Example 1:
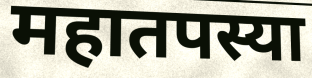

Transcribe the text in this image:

महातपस्या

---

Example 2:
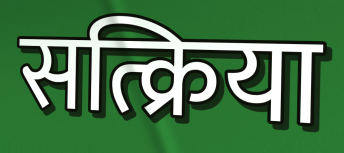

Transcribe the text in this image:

सत्क्रिया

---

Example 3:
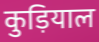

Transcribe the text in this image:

कुड़ियाल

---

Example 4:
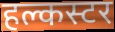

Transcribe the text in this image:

हल्कस्टर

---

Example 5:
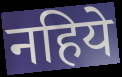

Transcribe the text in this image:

नहिये